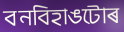
বনবিহাঙটোৰ